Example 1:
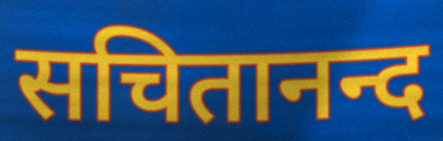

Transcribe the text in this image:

सचितानन्द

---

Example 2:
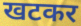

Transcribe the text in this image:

खटकर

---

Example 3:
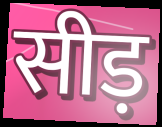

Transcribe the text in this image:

सीड़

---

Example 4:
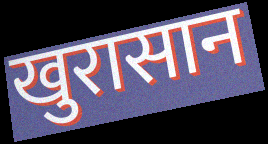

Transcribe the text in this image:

खुरासान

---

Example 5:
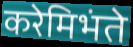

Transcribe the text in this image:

करेमिभंते